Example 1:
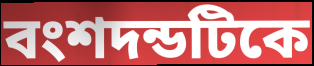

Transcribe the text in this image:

বংশদন্ডটিকে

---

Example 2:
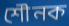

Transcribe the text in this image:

শৌনক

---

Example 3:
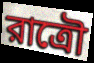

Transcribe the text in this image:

রাত্রৌ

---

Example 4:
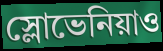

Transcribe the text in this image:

স্লোভেনিয়াও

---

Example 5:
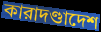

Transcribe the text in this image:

কারাদণ্ডাদেশ